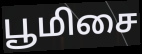
பூமிசை